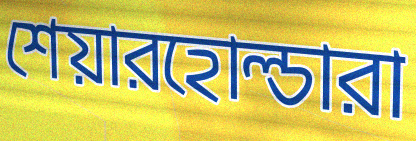
শেয়ারহোল্ডারা